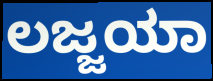
ಲಜ್ಜಯಾ